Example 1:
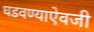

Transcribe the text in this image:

घडवण्याऐवजी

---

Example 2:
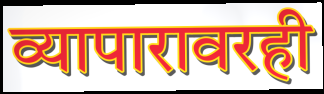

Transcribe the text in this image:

व्यापारावरही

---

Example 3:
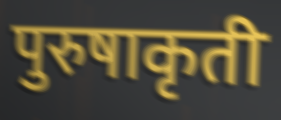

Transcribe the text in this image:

पुरुषाकृती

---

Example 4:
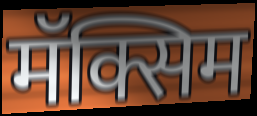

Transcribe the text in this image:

मॅक्सिम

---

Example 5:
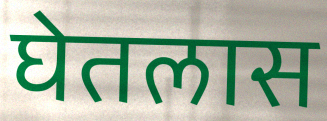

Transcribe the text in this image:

घेतलास